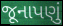
જૂનાપણું